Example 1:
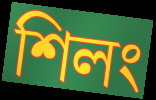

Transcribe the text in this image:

শিলং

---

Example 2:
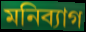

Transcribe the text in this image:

মনিব্যাগ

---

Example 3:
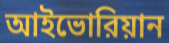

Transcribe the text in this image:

আইভোরিয়ান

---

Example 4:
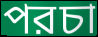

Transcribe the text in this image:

পরচা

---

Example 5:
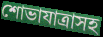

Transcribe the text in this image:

শোভাযাত্রাসহ